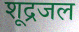
शूद्रजल